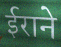
ईराने